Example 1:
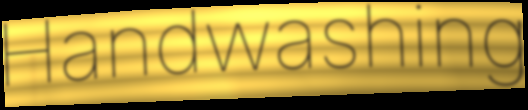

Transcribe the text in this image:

Handwashing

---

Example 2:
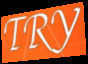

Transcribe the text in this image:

TRY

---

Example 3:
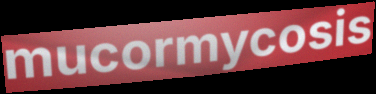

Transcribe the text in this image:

mucormycosis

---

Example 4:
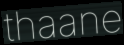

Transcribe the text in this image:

thaane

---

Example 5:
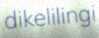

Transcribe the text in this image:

dikelilingi